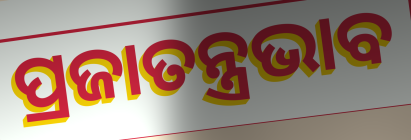
ପ୍ରଜାତନ୍ତ୍ରଭାବ